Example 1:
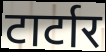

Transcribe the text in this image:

टार्टार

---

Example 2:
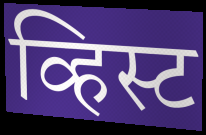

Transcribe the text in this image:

व्हिस्ट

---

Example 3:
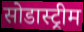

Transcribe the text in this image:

सोडास्ट्रीम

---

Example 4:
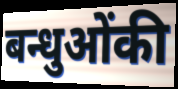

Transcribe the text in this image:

बन्धुओंकी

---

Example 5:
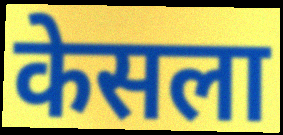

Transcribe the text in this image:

केसला